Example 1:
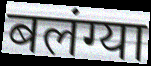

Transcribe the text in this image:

बलंग्या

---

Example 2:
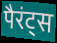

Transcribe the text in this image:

पैरंट्स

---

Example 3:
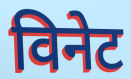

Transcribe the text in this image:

विनेट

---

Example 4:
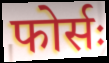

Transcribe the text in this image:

फोर्सः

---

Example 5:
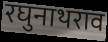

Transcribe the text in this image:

रघुनाथराव